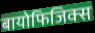
बायोफिजिक्स